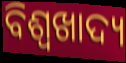
ବିଶ୍ୱଖାଦ୍ୟ